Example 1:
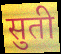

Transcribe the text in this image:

सुती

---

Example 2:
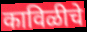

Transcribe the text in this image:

काविळीचे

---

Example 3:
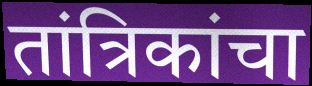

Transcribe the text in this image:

तांत्रिकांचा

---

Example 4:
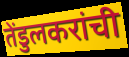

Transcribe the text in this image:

तेंडुलकरांची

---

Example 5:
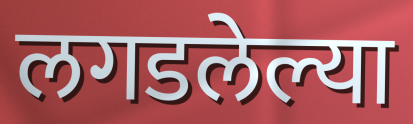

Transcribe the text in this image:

लगडलेल्या